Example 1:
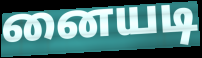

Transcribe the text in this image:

னையடி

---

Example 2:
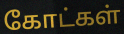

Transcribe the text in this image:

கோட்கள்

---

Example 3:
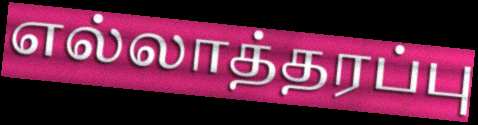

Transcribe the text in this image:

எல்லாத்தரப்பு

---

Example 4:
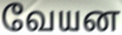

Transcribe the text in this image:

வேயன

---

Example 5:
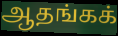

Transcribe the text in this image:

ஆதங்கக்